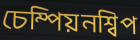
চেম্পিয়নশ্বিপ